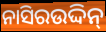
ନାସିରଉଦ୍ଦିନ୍